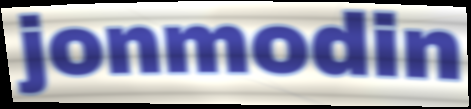
jonmodin